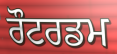
ਰੌਟਰਡਮ